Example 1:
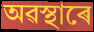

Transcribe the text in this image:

অৱস্থাৰে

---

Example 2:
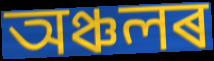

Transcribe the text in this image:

অঞ্চলৰ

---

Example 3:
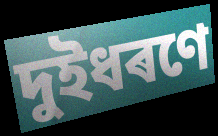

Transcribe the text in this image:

দুইধৰণে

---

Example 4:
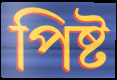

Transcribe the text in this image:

পিষ্ট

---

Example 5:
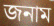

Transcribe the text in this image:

জনাম